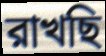
রাখছি